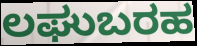
ಲಘುಬರಹ